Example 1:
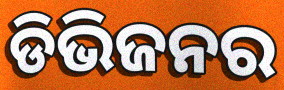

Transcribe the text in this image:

ଡିଭିଜନର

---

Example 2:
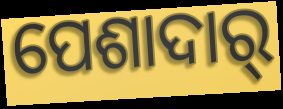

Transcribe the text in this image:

ପେଶାଦାର୍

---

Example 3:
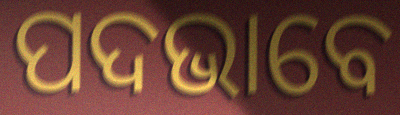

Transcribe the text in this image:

ପଦଭାବେ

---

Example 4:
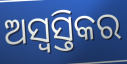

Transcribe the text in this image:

ଅସ୍ୱସ୍ତିକର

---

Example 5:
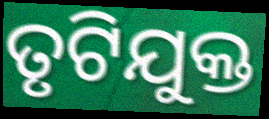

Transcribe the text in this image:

ତୃଟିଯୁକ୍ତ